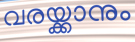
വരയ്ക്കാനും